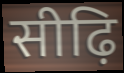
सीढ़ि